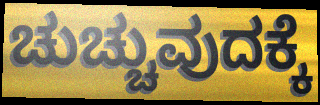
ಚುಚ್ಚುವುದಕ್ಕೆ